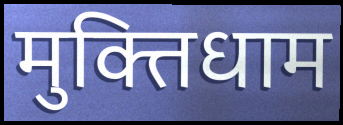
मुक्तिधाम